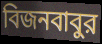
বিজনবাবুর